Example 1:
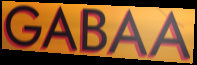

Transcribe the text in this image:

GABAA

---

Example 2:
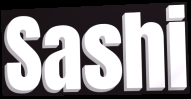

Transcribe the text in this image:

Sashi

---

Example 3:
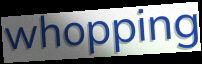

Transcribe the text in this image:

whopping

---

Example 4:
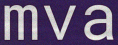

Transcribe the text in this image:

mva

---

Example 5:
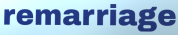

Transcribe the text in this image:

remarriage